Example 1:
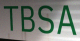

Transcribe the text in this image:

TBSA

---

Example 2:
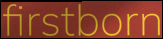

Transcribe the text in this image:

firstborn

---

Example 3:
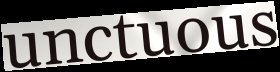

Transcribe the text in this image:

unctuous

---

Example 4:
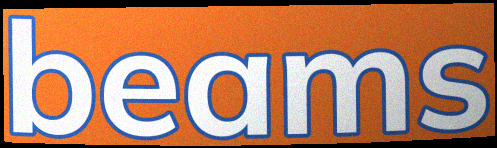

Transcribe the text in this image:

beams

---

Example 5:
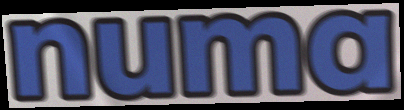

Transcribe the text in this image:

numa